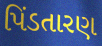
પિંડતારણ